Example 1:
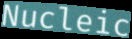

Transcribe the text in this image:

Nucleic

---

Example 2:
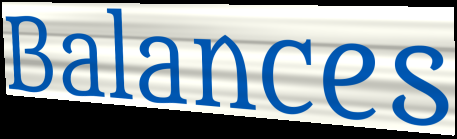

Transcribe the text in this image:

Balances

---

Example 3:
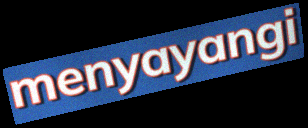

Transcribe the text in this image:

menyayangi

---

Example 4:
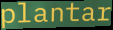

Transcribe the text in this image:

plantar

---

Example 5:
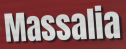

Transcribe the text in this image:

Massalia